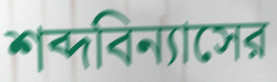
শব্দবিন্যাসের